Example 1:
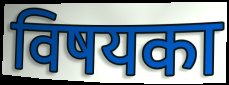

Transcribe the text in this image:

विषयका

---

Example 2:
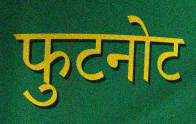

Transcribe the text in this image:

फुटनोट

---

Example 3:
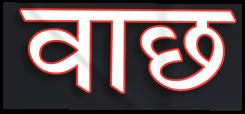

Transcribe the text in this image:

वाछ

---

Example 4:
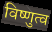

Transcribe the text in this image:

विष्णुत्व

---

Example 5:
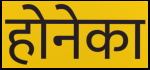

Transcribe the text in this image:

होनेका